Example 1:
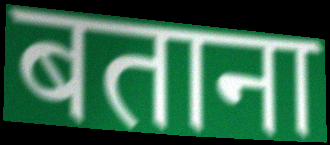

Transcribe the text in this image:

बताना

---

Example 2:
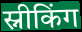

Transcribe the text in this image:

स्नीकिंग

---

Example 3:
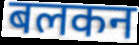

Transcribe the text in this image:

बलकन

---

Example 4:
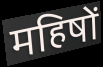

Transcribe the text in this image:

महिषों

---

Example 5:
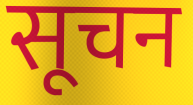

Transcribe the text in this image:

सूचन